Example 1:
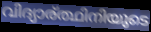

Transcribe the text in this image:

വിദ്യാര്ത്ഥിനിയുടെ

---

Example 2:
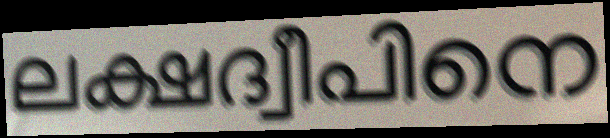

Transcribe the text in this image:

ലക്ഷദ്വീപിനെ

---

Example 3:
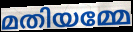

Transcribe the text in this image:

മതിയമ്മേ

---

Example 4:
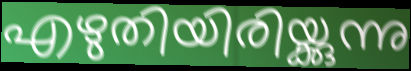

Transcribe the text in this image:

എഴുതിയിരിയ്ക്കുന്നു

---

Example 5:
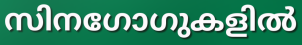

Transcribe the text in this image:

സിനഗോഗുകളിൽ